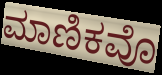
ಮಾಣಿಕವೊ